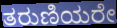
ತರುಣಿಯರೇ